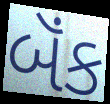
બૅંક